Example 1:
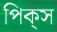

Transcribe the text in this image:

পিক্‌স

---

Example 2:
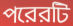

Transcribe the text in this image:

পরেরটি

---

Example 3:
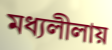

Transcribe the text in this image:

মধ্যলীলায়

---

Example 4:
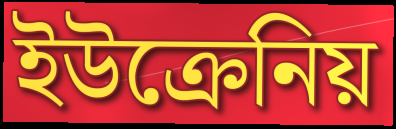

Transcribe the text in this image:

ইউক্রেনিয়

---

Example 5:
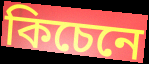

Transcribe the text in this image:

কিচেনে